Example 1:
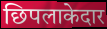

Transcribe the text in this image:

छिपलाकेदार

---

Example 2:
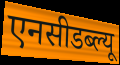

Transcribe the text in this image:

एनसीडब्ल्यू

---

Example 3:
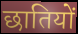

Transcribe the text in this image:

छातियों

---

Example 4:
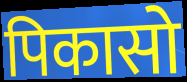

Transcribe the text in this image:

पिकासो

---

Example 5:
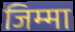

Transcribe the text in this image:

जिम्मा